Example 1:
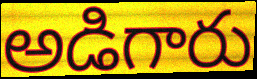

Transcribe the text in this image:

అడిగారు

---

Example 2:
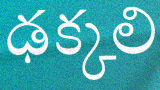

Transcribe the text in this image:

ఢక్కలి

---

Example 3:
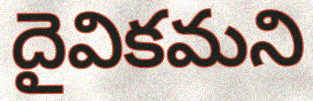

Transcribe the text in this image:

దైవికమని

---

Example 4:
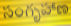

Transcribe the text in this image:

సంగృహాణ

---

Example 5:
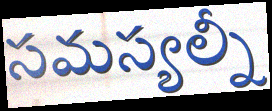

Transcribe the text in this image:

సమస్యల్నీ